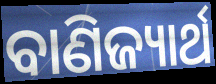
ବାଣିଜ୍ୟାର୍ଥ